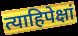
त्याहिपेक्षां